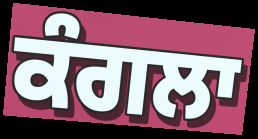
ਕੰਗਲਾ